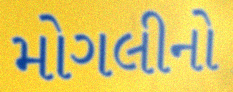
મોગલીનો